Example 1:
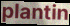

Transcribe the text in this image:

plantin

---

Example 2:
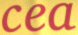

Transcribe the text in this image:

cea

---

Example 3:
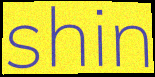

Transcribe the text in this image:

shin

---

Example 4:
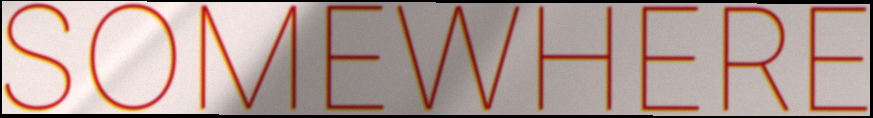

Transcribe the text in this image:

SOMEWHERE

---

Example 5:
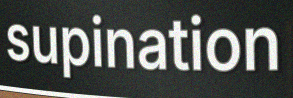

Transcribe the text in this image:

supination